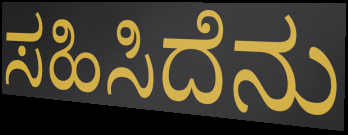
ಸಹಿಸಿದೆನು